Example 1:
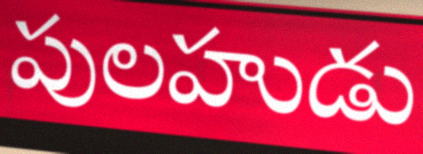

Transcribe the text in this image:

పులహుడు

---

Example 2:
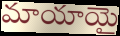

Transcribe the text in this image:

మాయాయై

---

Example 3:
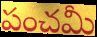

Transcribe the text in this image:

పంచమీ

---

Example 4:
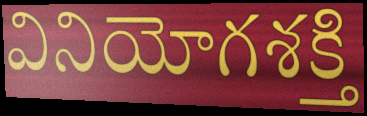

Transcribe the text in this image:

వినియోగశక్తి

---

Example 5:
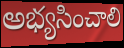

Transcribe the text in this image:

అభ్యసించాలి